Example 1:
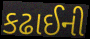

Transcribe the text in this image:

કઢાઈની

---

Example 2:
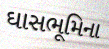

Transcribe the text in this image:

ઘાસભૂમિના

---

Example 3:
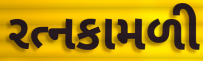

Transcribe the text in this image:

રત્નકામળી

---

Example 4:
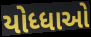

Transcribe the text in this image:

યોધ્ધાઓ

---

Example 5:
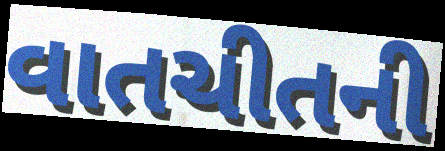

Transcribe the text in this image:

વાતચીતની